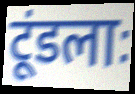
टूंडलाः